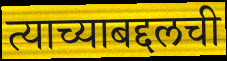
त्याच्याबद्दलची